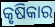
କୃଷିକାର